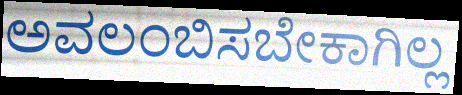
ಅವಲಂಬಿಸಬೇಕಾಗಿಲ್ಲ